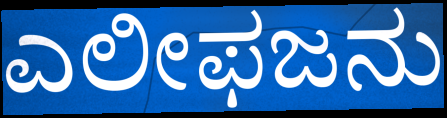
ಎಲೀಫಜನು